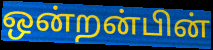
ஒன்றன்பின்